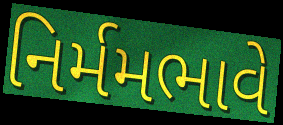
નિર્મમભાવે